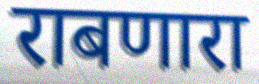
राबणारा